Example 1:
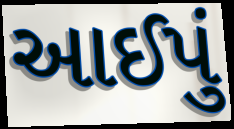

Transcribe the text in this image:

આઈપું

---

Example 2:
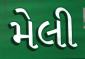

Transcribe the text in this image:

મેલી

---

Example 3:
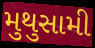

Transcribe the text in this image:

મુથુસામી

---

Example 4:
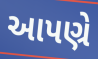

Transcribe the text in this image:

આપણ્રે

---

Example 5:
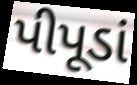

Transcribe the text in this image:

પીપૂડાં